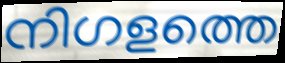
നിഗളത്തെ